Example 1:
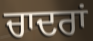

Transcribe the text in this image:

ਚਾਦਰਾਂ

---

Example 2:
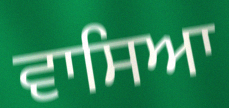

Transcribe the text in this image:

ਵਾਸਿਆ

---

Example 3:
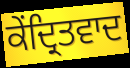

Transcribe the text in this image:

ਕੇਂਦ੍ਰਿਤਵਾਦ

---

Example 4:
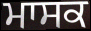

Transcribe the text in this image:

ਮਾਸਕ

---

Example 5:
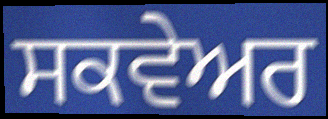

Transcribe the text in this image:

ਸਕਵੇਅਰ